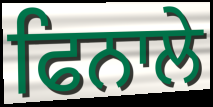
ਫਿਨਾਲੇ